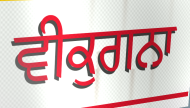
ਵੀਕੁਗਨਾ